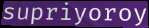
supriyoroy